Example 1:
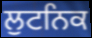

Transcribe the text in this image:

ਲੁਟਨਿਕ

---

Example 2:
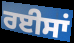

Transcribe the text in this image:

ਰਈਸਾਂ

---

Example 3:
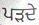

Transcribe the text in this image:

ਪੜਦੇ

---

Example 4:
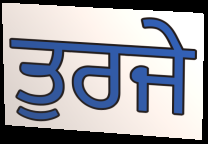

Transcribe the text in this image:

ਤੁਰਜੇ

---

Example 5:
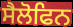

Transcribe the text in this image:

ਸੈਲੋਫਿਨ